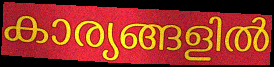
കാര്യങ്ങളിൽ